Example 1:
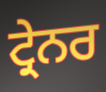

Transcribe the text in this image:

ਟ੍ਰੇਨਰ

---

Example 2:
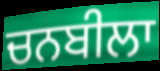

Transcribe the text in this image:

ਚਨਬੀਲਾ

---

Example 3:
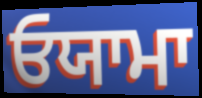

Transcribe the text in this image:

ਓਯਾਮਾ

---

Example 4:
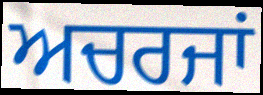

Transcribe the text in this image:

ਅਚਰਜਾਂ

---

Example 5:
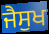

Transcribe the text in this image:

ਜੈਸੁਖ